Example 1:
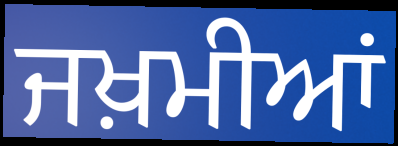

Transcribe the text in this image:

ਜਖ਼ਮੀਆਂ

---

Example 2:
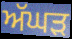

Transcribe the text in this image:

ਅੱਘੜ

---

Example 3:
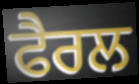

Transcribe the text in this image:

ਫੈਰਲ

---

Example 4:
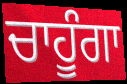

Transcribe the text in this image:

ਚਾਹੂੰਗਾ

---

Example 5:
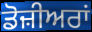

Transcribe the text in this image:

ਡੋਜ਼ੀਅਰਾਂ